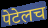
पेटेलच